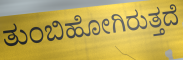
ತುಂಬಿಹೋಗಿರುತ್ತದೆ